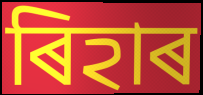
ৰিহাৰ